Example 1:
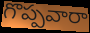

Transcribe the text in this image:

గొప్పవారా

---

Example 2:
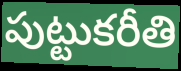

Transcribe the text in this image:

పుట్టుకరీతి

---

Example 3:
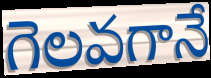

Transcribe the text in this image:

గెలవగానే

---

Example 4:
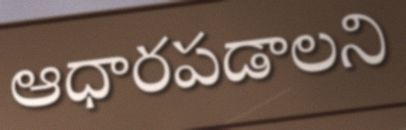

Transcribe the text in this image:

ఆధారపడాలని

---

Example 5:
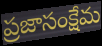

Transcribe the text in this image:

ప్రజాసంక్షేమ